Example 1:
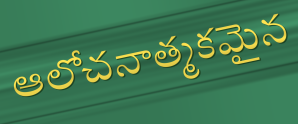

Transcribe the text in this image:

ఆలోచనాత్మకమైన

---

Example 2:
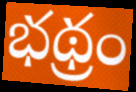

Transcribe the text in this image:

భథ్రం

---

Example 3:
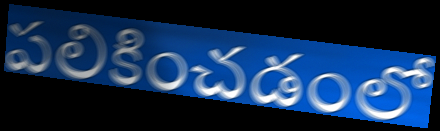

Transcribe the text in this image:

పలికించడంలో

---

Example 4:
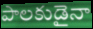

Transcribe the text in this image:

పాలకుడైనా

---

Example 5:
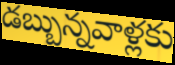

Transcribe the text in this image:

డబ్బున్నవాళ్లకు